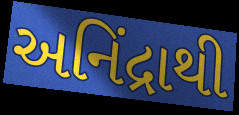
અનિંદ્રાથી